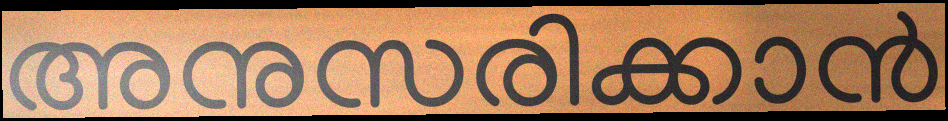
അനുസരിക്കാൻ